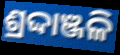
ଶ୍ରଦ୍ଦାଞ୍ଜଳି